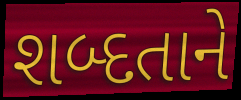
શબ્દતાને